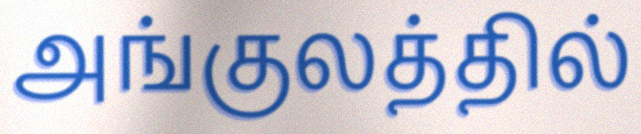
அங்குலத்தில்